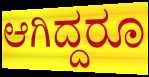
ಆಗಿದ್ದರೂ